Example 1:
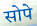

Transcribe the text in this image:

सोपे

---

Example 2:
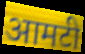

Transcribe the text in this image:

आमटी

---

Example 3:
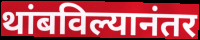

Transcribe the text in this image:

थांबविल्यानंतर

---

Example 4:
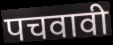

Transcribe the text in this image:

पचवावी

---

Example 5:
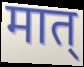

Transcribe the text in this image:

मात्